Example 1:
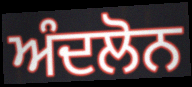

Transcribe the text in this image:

ਅੰਦਲੋਨ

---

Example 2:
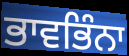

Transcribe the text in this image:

ਭਾਵਭਿੰਨਾ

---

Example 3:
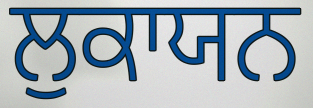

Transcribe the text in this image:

ਲੁਕਾਯਨ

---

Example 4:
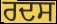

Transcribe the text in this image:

ਰਦਸ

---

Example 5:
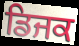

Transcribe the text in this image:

ਡਿਜਕ